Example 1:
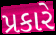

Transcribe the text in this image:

પ્રકારે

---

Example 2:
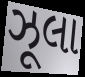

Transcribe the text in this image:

ઝૂલા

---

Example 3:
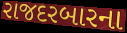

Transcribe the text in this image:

રાજદરબારના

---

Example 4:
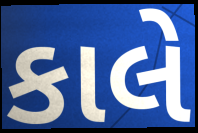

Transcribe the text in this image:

કાલે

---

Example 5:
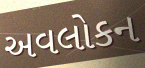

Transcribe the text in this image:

અવલોકન